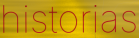
historias